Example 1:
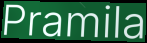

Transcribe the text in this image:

Pramila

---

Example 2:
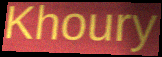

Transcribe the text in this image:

Khoury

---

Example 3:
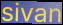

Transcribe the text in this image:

sivan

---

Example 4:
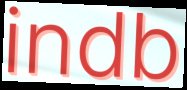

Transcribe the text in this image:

indb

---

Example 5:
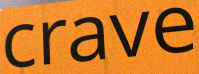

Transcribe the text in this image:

crave